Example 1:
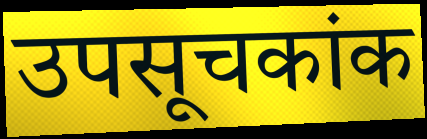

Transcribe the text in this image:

उपसूचकांक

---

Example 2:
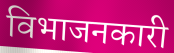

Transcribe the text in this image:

विभाजनकारी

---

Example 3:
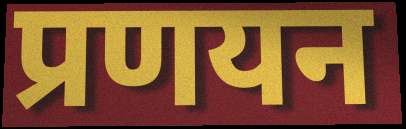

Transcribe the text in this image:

प्रणयन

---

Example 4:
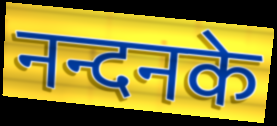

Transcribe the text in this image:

नन्दनके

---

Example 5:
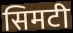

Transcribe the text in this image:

सिमटी